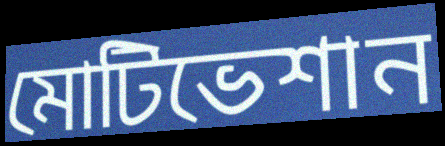
মোটিভেশান